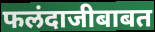
फलंदाजीबाबत